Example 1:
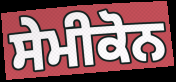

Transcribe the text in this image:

ਸੇਮੀਕੋਨ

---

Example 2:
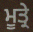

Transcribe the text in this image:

ਮੂਤ੍ਰੇ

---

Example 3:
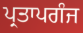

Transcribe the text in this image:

ਪ੍ਰਤਾਪਗੰਜ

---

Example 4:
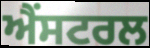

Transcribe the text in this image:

ਐਂਸਟਰਲ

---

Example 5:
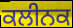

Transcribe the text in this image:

ਕਲੀਨਕ